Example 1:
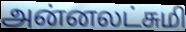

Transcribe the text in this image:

அன்னலட்சுமி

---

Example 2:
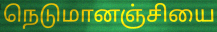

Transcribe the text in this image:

நெடுமானஞ்சியை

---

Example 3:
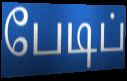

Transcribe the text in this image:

பேடிப்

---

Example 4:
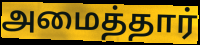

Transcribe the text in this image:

அமைத்தார்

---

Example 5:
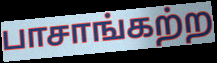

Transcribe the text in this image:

பாசாங்கற்ற